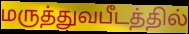
மருத்துவபீடத்தில்